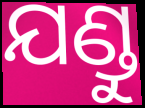
ଯଣ୍ଡୁ